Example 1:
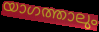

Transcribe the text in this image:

യാഗത്താലും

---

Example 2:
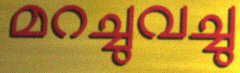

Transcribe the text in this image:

മറച്ചുവച്ചു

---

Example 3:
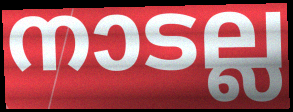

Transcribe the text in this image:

നാടല്ല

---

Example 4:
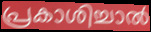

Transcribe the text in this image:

പ്രകാശിച്ചാൽ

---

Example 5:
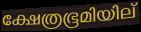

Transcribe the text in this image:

ക്ഷേത്രഭൂമിയില്